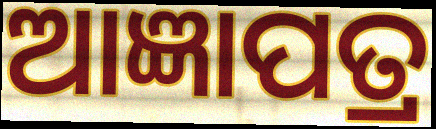
ଆଜ୍ଞାପତ୍ର